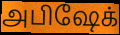
அபிஷேக்